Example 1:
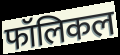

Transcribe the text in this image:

फॉलिकल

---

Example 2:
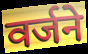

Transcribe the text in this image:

वर्जने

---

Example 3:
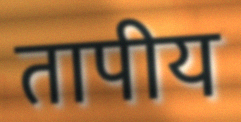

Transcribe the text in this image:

तापीय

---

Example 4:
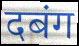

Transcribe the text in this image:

दबंग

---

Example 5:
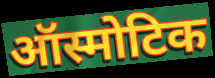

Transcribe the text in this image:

ऑस्मोटिक